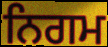
ਨਿਗਮ